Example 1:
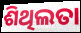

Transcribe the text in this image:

ଶିଥିଲତା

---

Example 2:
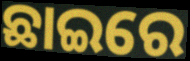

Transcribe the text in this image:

ଛାଇରେ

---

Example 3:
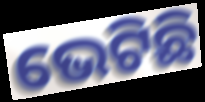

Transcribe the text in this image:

ଭେଟିଛି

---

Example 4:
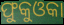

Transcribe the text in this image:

ଫୁକୁଓକା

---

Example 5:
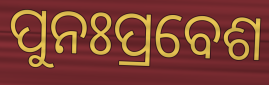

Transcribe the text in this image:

ପୁନଃପ୍ରବେଶ